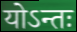
योऽन्तः